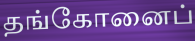
தங்கோனைப்